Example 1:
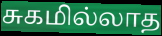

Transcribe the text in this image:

சுகமில்லாத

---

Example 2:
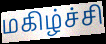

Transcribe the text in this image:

மகிழ்ச்சி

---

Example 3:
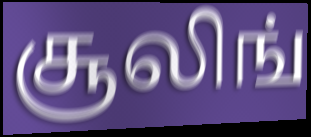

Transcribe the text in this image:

சூலிங்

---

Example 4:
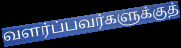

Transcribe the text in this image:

வளர்ப்பவர்களுக்குத்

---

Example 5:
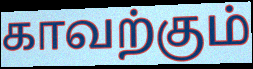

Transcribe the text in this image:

காவற்கும்